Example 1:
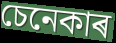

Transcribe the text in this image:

চেনেকাৰ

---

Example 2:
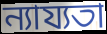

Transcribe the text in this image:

ন্যায্যতা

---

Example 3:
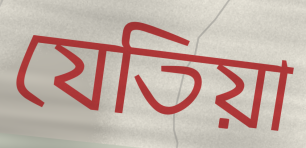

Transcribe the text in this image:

যেতিয়া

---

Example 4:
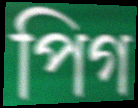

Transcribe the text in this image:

পিগ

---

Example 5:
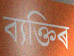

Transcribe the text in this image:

ব্যক্তিৰ